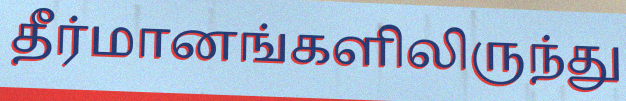
தீர்மானங்களிலிருந்து